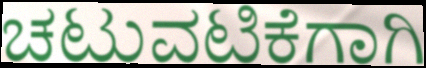
ಚಟುವಟಿಕೆಗಾಗಿ